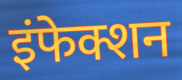
इंफेक्शन